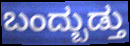
ಬಂದ್ಬುಡ್ತು